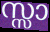
സ്സാ